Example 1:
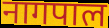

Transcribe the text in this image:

नागपाल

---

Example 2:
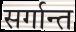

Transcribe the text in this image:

सर्गान्त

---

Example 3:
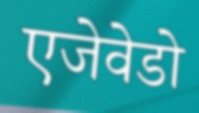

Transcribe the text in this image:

एजेवेडो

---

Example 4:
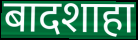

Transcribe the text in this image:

बादशाहा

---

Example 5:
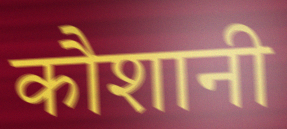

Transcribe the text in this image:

कौशानी